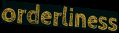
orderliness